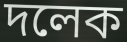
দলেক